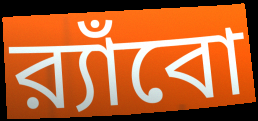
র‍্যাঁবো